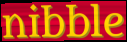
nibble